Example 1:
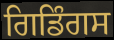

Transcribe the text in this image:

ਗਿਡਿੰਗਸ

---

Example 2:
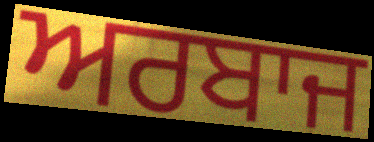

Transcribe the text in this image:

ਅਰਬਾਜ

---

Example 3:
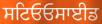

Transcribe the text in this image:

ਸਟਿਓਓਸਾਈਡ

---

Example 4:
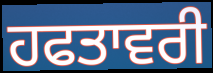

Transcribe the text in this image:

ਹਫਤਾਵਰੀ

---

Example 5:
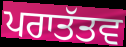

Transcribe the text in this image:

ਪਰਾਤੱਤਵ